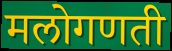
मलोगणती